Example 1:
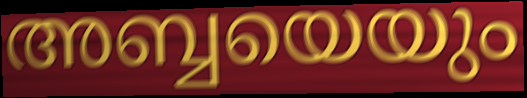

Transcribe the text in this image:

അബ്ബയെയും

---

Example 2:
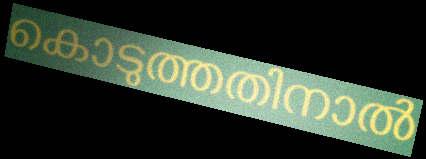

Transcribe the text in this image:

കൊടുത്തതിനാൽ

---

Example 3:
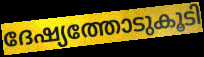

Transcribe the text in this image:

ദേഷ്യത്തോടുകൂടി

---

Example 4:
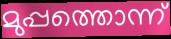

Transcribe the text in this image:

മുപ്പത്തൊന്ന്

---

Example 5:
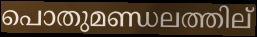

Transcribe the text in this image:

പൊതുമണ്ഡലത്തില്